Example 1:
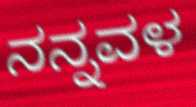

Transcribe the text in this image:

ನನ್ನವಳ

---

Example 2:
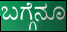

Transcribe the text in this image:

ಬಗ್ಗೆನೂ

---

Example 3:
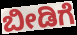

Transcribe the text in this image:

ಬೀಡಿಗೆ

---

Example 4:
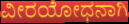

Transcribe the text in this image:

ವೀರಯೋಧನಾಗಿ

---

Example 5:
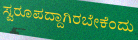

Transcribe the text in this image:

ಸ್ವರೂಪದ್ದಾಗಿರಬೇಕೆಂದು